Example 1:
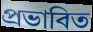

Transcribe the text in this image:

প্রভাবিত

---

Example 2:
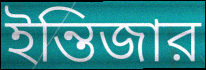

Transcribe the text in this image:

ইন্তিজার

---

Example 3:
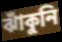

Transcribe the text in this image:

ঝাঁকুনি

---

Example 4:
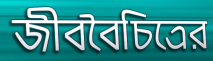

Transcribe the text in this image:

জীববৈচিত্রের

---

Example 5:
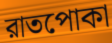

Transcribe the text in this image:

রাতপোকা